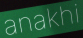
anakhi